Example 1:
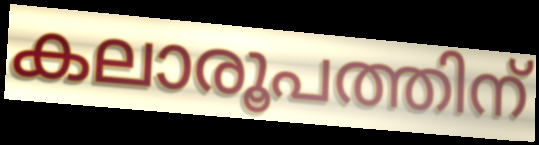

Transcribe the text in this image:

കലാരൂപത്തിന്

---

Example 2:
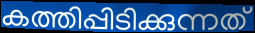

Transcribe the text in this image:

കത്തിപ്പിടിക്കുന്നത്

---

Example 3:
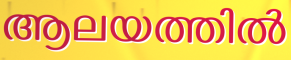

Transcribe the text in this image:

ആലയത്തിൽ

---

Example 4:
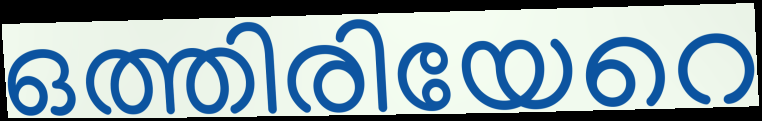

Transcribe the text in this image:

ഒത്തിരിയേറെ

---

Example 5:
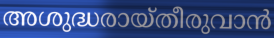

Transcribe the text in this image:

അശുദ്ധരായ്തീരുവാൻ